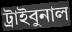
ট্রাইবুনাল